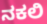
ನಕಲಿ